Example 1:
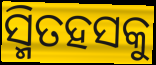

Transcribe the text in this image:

ସ୍ମିତହସକୁ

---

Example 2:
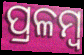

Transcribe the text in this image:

ପ୍ରଳମ୍ବ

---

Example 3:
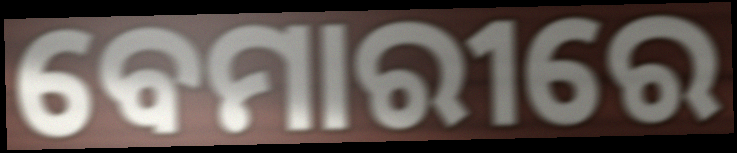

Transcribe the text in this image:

ବେମାରୀରେ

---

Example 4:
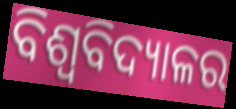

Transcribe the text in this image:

ବିଶ୍ୱବିଦ୍ୟାଳର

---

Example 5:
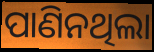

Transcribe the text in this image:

ପାଣିନଥିଲା